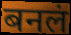
बनलं